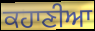
ਕਹਾਣੀਆ